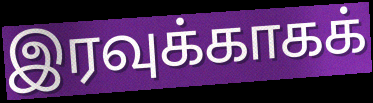
இரவுக்காகக்